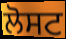
ਲੋਸਟ